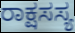
ರಾಕ್ಷಸಸ್ಯ